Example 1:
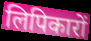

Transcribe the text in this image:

लिपिकारों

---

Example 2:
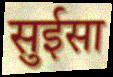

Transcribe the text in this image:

सुईसा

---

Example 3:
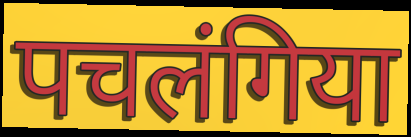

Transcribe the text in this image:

पचलंगिया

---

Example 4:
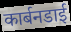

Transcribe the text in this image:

कार्बनडाई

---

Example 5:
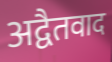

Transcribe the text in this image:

अद्वैतवाद